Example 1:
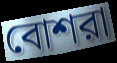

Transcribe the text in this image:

বোশরা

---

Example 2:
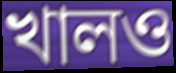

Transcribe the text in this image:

খালও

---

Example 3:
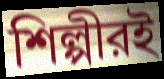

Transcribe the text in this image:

শিল্পীরই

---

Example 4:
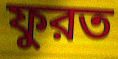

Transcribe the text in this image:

ফুরত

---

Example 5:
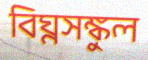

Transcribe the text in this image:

বিঘ্নসঙ্কুল